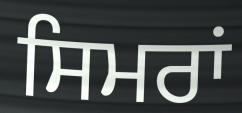
ਸਿਮਰਾਂ